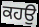
ਕਹਉ